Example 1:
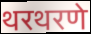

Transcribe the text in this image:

थरथरणे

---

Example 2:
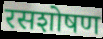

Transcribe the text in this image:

रसशोषण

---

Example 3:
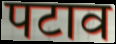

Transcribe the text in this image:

पटाव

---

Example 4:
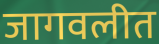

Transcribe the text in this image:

जागवलीत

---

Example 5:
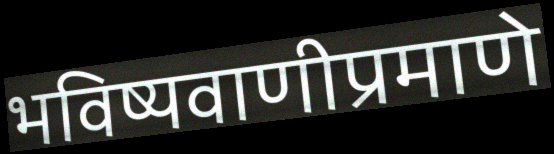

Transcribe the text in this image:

भविष्यवाणीप्रमाणे